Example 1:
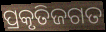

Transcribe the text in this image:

ପ୍ରକୃତିଜଗତ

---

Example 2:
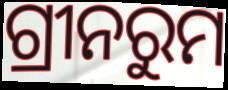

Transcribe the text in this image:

ଗ୍ରୀନରୁମ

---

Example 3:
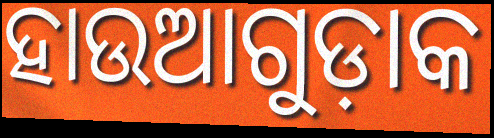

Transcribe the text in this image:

ହାଉଆଗୁଡ଼ାକ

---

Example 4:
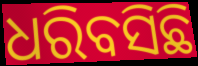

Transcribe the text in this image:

ଧରିବସିଛି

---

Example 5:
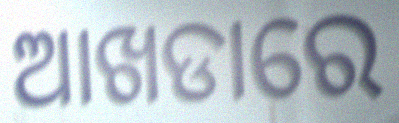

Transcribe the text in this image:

ଆଖଡାରେ